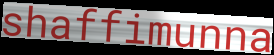
shaffimunna